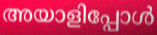
അയാളിപ്പോൾ